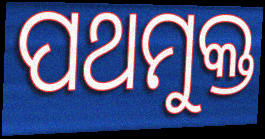
ପଥମୁକ୍ତ